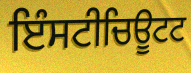
ਇੰਸਟੀਚਿਊਟਟ